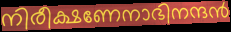
നിരീക്ഷണേനാഭിനന്ദൻ